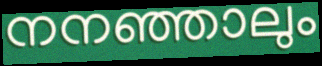
നനഞ്ഞാലും